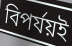
বিপর্যয়ই